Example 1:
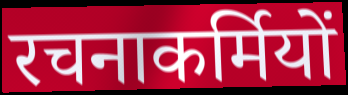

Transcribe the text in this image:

रचनाकर्मियों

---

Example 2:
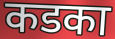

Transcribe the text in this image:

कडका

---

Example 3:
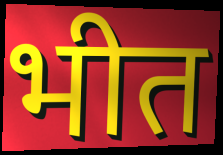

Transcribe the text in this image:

भीत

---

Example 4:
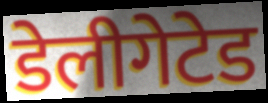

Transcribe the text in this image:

डेलीगेटेड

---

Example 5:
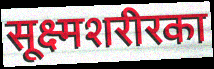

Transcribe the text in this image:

सूक्ष्मशरीरका